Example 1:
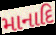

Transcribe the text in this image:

માનાદિ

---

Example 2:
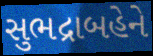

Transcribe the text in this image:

સુભદ્રાબહેને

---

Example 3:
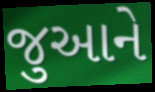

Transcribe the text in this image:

જુઆને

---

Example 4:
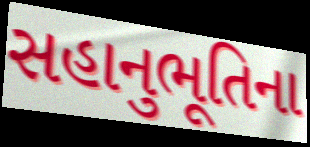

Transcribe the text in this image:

સહાનુભૂતિના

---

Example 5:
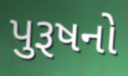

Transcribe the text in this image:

પુરૂષનો